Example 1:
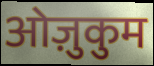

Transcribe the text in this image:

ओज़ुकुम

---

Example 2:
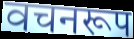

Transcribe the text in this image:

वचनरूप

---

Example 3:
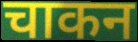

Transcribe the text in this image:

चाकन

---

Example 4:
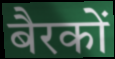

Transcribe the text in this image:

बैरकों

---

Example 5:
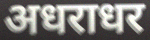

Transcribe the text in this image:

अधराधर